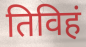
तिविहं